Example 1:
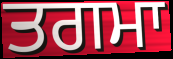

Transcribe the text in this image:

ਤਗਮਾ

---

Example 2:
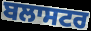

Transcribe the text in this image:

ਬਲਾਸਟਰ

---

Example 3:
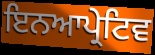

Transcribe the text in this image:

ਇਨਆਪ੍ਰੇਟਿਵ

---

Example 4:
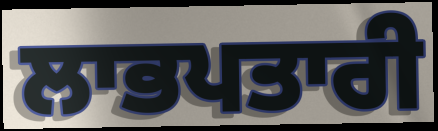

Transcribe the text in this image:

ਲਾਭਪਤਾਰੀ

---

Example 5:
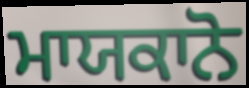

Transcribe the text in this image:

ਮਾਯਕਾਨੋ